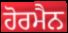
ਹੋਰਮੈਨ